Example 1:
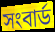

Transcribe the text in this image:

সংবার্ড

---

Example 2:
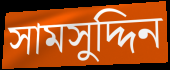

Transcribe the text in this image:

সামসুদ্দিন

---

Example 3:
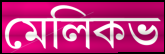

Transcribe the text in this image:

মেলিকভ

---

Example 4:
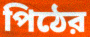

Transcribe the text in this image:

পিঠের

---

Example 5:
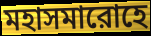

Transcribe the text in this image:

মহাসমারোহে